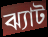
ঝ্যাট